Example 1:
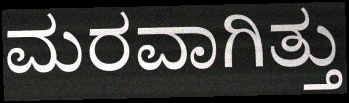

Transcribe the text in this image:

ಮರವಾಗಿತ್ತು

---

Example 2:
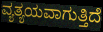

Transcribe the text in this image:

ವ್ಯತ್ಯಯವಾಗುತ್ತಿದೆ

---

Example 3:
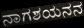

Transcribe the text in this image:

ನಾಗಶಯನನ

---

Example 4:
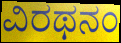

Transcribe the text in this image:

ವಿರಥನಂ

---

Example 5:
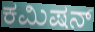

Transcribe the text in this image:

ಕಮಿಷನ್